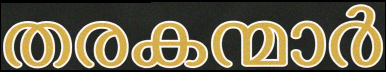
തരകന്മാർ